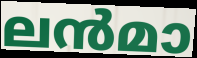
ലൻമാ